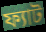
ফ্যাট